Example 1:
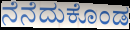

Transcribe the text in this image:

ನೆನೆದುಕೊಂಡ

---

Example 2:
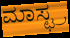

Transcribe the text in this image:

ಮಾಸ್ಟ್ರ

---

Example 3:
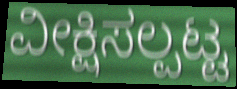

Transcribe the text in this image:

ವೀಕ್ಷಿಸಲ್ಪಟ್ಟ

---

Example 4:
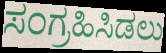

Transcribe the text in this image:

ಸಂಗ್ರಹಿಸಿಡಲು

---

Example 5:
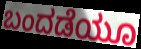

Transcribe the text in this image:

ಬಂದಡೆಯೂ